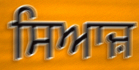
ਸਿਆਜ਼